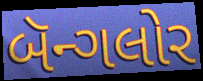
બૅન્ગલોર